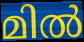
മിൽ